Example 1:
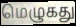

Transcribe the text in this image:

மெழுகது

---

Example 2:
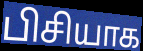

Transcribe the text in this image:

பிசியாக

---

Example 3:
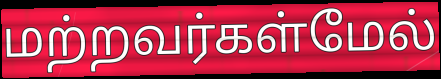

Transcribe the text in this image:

மற்றவர்கள்மேல்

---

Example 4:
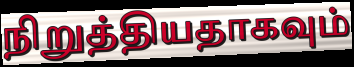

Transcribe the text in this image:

நிறுத்தியதாகவும்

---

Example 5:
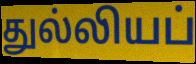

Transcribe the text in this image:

துல்லியப்